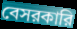
বেসরকারি